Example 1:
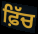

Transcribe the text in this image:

ਫ਼ਿੱਚ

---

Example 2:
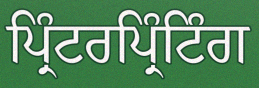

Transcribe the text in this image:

ਪ੍ਰਿੰਟਰਪ੍ਰਿੰਟਿੰਗ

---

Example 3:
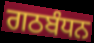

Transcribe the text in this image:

ਗਠਬੰਧਨ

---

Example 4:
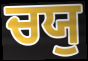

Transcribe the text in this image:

ਚਯੁ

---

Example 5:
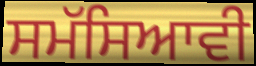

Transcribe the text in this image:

ਸਮੱਸਿਆਵੀ